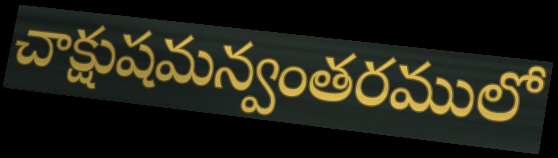
చాక్షుషమన్వంతరములో